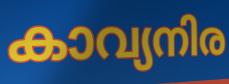
കാവ്യനിര